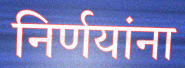
निर्णयांना